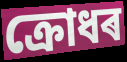
ক্ৰোধৰ